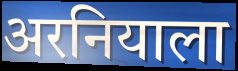
अरनियाला